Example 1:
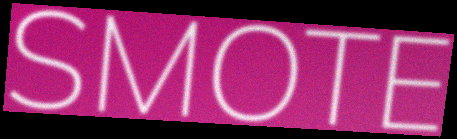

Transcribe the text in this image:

SMOTE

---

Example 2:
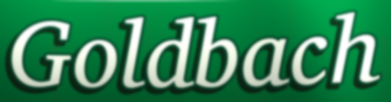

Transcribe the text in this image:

Goldbach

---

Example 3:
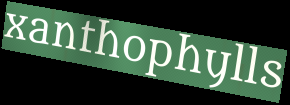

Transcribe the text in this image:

xanthophylls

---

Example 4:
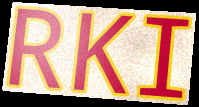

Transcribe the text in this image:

RKI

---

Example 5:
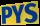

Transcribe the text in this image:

PYS